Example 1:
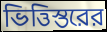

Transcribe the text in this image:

ভিত্তিস্তরের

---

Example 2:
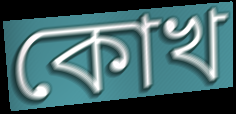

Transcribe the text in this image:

কোখ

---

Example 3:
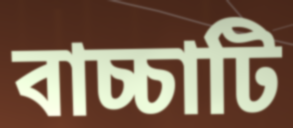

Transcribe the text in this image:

বাচ্চাটি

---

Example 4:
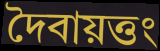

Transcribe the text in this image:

দৈবায়ত্তং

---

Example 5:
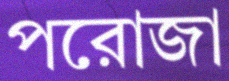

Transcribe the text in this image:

পরোজা